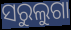
ସରୁଲୁଗା